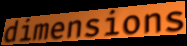
dimensions